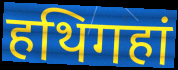
हथिगहां